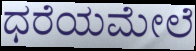
ಧರೆಯಮೇಲೆ